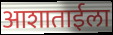
आशाताईला